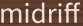
midriff